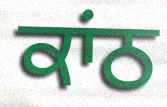
ਕਾਂਠ